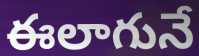
ఈలాగునే